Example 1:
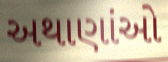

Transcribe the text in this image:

અથાણાંઓ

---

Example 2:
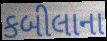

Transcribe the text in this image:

કબીલાના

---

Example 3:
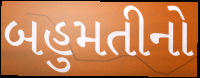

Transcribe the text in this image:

બહુમતીનો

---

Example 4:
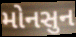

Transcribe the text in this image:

મોનસુન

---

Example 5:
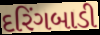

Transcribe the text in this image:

દરિંગબાડી